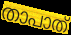
താപാത്